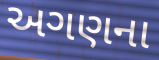
અગણના